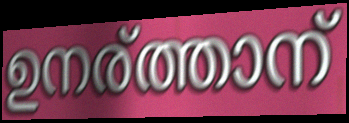
ഉനര്ത്താന്